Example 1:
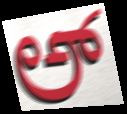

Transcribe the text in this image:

ಅ್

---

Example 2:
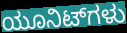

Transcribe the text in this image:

ಯೂನಿಟ್‌ಗಳು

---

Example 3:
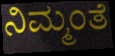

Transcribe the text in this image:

ನಿಮ್ಮಂತೆ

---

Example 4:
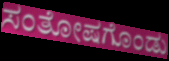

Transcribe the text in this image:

ಸಂತೋಷಗೊಂಡು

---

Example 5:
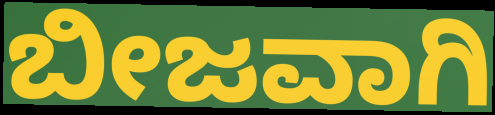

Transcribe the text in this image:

ಬೀಜವಾಗಿ